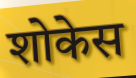
शोकेस